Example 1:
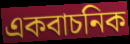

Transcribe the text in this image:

একবাচনিক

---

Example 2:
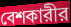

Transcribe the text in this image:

বেশকারীর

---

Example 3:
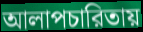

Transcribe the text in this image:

আলাপচারিতায়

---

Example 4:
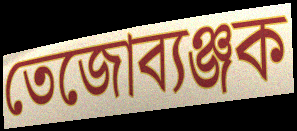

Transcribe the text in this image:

তেজোব্যঞ্জক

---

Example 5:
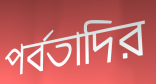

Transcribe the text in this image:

পর্বতাদির